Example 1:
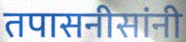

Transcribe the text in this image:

तपासनीसांनी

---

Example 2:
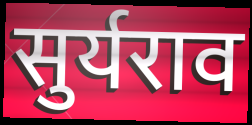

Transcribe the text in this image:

सुर्यराव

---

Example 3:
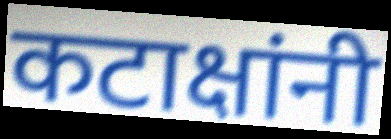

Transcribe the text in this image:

कटाक्षांनी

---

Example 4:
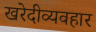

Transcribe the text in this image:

खरेदीव्यवहार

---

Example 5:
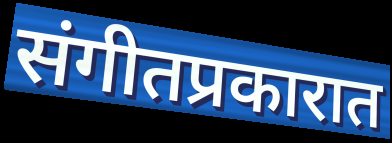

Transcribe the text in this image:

संगीतप्रकारात